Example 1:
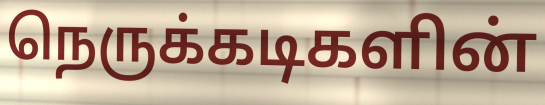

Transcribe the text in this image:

நெருக்கடிகளின்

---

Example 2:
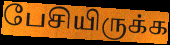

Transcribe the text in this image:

பேசியிருக்க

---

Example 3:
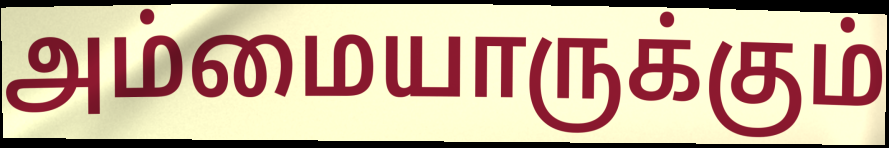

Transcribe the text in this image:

அம்மையாருக்கும்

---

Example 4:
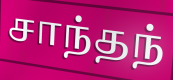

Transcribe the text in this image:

சாந்தந்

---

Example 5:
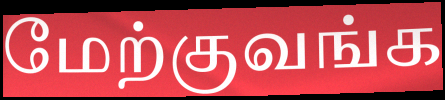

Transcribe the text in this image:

மேற்குவங்க